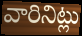
వారినిట్లు